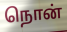
நொன்